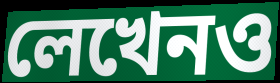
লেখেনও